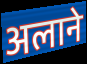
अलाने